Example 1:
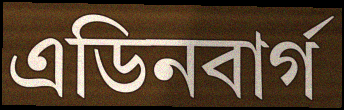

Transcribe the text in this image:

এডিনবাৰ্গ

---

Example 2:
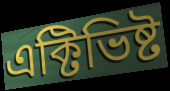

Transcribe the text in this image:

এক্টিভিষ্ট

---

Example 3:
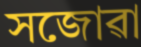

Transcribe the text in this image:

সজোৱা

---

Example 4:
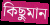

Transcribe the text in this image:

কিছুমান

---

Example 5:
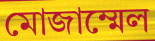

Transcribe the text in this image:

মোজাম্মেল